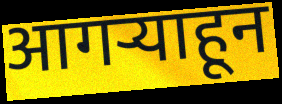
आगऱ्याहून